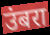
उंबरा